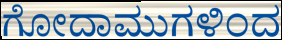
ಗೋದಾಮುಗಳಿಂದ